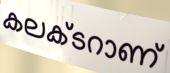
കലക്ടറാണ്